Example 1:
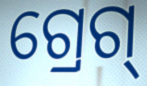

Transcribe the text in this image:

ଗ୍ରେଗ୍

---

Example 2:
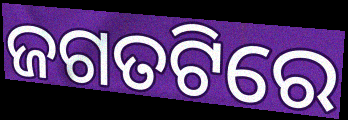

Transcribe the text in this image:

ଜଗତଟିରେ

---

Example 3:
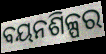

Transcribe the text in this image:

ବୟନଶିଳ୍ପର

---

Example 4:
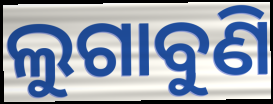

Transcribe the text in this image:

ଲୁଗାବୁଣି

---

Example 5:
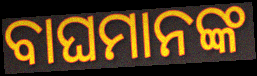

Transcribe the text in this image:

ବାଘମାନଙ୍କ